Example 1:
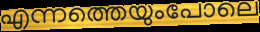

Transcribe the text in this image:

എന്നത്തെയുംപോലെ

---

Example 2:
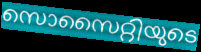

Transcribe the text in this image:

സൊസൈറ്റിയുടെ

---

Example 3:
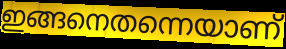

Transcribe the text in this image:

ഇങ്ങനെതന്നെയാണ്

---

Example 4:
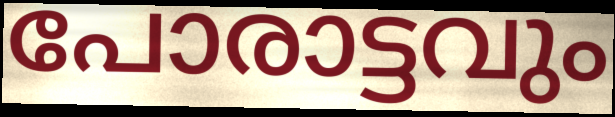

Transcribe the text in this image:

പോരാട്ടവും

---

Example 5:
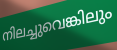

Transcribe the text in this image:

നിലച്ചുവെങ്കിലും